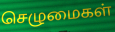
செழுமைகள்